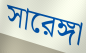
সারেঙ্গা